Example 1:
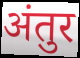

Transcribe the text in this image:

अंतुर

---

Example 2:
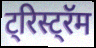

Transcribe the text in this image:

ट्रिस्ट्रॅम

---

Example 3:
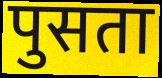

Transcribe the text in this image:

पुसता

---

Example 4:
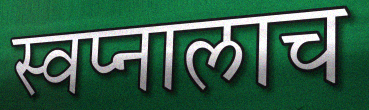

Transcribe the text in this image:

स्वप्नालाच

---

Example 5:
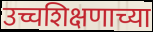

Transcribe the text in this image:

उच्चशिक्षणाच्या